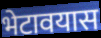
भेटावयास